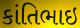
કાંતિભાઇ